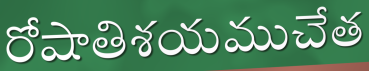
రోషాతిశయముచేత